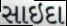
સાઇદા